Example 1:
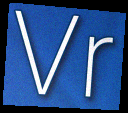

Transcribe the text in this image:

Vr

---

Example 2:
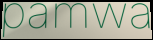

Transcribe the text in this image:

pamwa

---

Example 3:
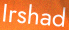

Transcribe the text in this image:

Irshad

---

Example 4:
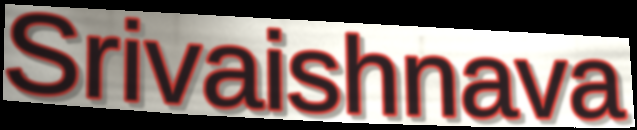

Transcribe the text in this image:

Srivaishnava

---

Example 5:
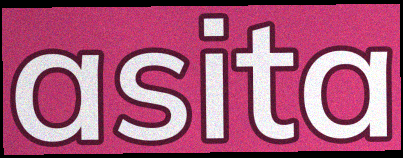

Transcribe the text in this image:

asita